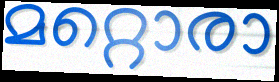
മറ്റൊരാ